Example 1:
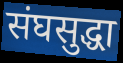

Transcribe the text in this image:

संघसुद्धा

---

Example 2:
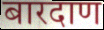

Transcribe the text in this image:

बारदाण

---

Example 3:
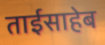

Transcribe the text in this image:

ताईसाहेब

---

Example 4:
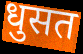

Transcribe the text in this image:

धुसत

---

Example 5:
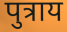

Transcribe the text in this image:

पुत्राय